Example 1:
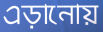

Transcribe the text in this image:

এড়ানোয়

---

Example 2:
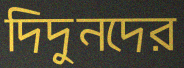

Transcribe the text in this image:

দিদুনদের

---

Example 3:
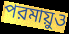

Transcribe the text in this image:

পরমায়ুও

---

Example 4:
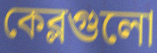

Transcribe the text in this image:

কেব্লগুলো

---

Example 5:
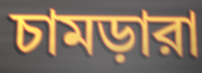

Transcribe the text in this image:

চামড়ারা